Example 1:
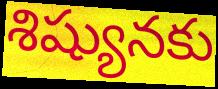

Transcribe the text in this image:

శిష్యునకు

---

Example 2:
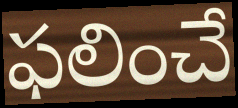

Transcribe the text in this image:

ఫలించే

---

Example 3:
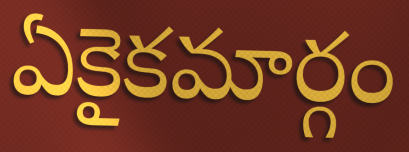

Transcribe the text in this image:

ఏకైకమార్గం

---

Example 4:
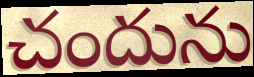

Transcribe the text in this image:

చందును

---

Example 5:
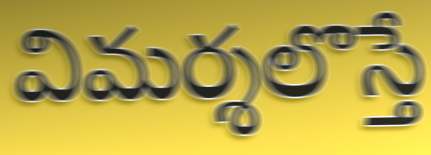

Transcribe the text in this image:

విమర్శలొస్తే